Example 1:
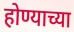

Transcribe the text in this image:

होण्याच्या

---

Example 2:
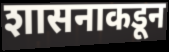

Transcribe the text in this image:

शासनाकडून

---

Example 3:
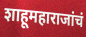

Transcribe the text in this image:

शाहूमहाराजांचं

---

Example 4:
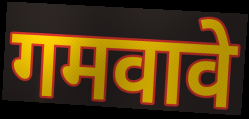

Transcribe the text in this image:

गमवावे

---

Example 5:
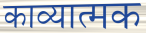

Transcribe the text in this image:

काव्यात्मक